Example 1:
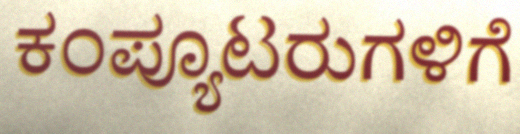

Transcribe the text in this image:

ಕಂಪ್ಯೂಟರುಗಳಿಗೆ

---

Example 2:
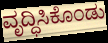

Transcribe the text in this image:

ವೃದ್ಧಿಸಿಕೊಂಡು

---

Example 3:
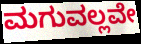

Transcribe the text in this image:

ಮಗುವಲ್ಲವೇ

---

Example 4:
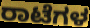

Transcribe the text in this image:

ರಾಟೆಗಳ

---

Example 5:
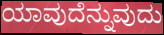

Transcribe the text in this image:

ಯಾವುದೆನ್ನುವುದು